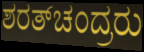
ಶರತ್‌ಚಂದ್ರರು